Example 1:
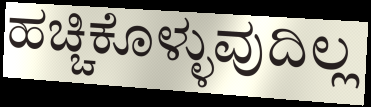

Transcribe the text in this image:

ಹಚ್ಚಿಕೊಳ್ಳುವುದಿಲ್ಲ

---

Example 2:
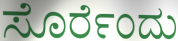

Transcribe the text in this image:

ಸೊರ್ರೆಂದು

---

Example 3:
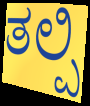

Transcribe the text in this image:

ತಲ್ಪಿ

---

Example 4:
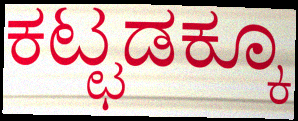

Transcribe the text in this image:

ಕಟ್ಟಡಕ್ಕೂ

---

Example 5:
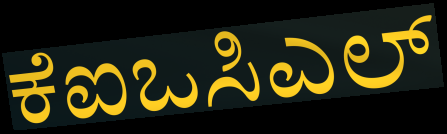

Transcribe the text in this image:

ಕೆಐಒಸಿಎಲ್